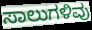
ಸಾಲುಗಳಿವು